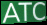
ATC